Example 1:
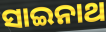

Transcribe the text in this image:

ସାଇନାଥ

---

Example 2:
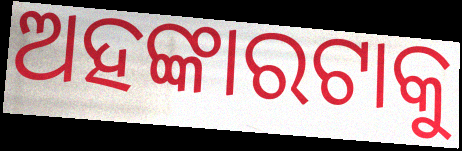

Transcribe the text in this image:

ଅହଙ୍କାରଟାକୁ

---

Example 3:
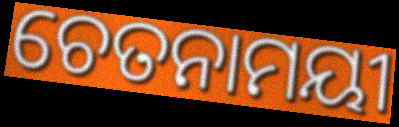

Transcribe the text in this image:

ଚେତନାମୟୀ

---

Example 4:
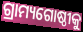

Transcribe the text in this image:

ଗ୍ରାମ୍ୟଗୋଷ୍ଠୀକୁ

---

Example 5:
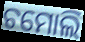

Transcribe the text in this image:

ଚମୋଲି